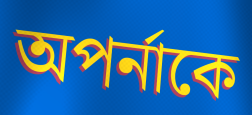
অপর্নাকে